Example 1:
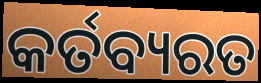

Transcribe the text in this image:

କର୍ତବ୍ୟରତ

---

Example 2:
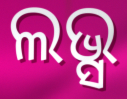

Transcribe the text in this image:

ଲଭ୍ସ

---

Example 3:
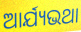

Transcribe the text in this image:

ଆର୍ଯ୍ୟଭଥା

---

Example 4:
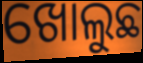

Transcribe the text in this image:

ଖୋଲୁଛ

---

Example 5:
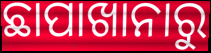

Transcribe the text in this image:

ଛାପାଖାନାରୁ